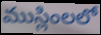
ముస్లింలలో